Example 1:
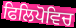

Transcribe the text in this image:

ਫਿਲਿਪੋਵਿਚ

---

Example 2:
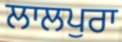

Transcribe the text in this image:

ਲਾਲਪੁਰਾ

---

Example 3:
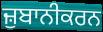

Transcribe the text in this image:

ਜ਼ੁਬਾਨੀਕਰਨ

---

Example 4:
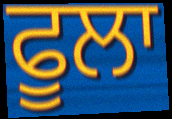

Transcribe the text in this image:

ਫੂਲਾ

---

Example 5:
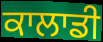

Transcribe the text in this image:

ਕਾਲਾਡੀ